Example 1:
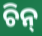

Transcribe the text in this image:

ଚିନ୍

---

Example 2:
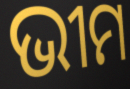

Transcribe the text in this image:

ଭୀମ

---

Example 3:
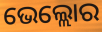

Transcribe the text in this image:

ଭେଲ୍ଲୋର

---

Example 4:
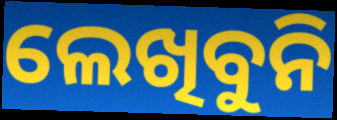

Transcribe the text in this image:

ଲେଖିବୁନି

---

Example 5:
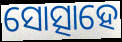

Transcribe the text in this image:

ସୋତ୍ସାହେ